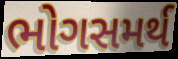
ભોગસમર્થ